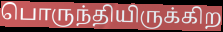
பொருந்தியிருக்கிற